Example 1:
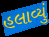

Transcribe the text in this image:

હલાવ્યું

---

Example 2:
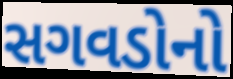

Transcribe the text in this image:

સગવડોનો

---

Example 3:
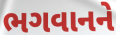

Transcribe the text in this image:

ભગવાનને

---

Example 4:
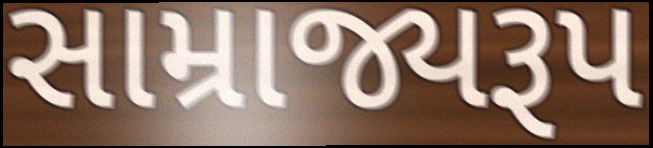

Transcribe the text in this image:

સામ્રાજ્યરૂપ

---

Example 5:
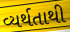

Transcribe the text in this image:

વ્યર્થતાથી